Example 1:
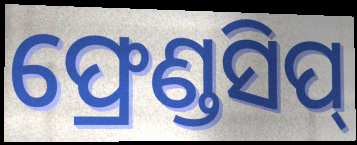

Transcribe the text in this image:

ଫ୍ରେଣ୍ଡସିପ୍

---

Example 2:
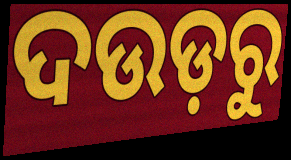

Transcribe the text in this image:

ଦଉଡ଼ରୁ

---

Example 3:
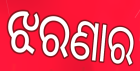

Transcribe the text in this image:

ଝରଣାର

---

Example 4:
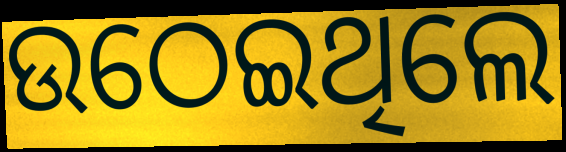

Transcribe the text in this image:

ଉଠେଇଥିଲେ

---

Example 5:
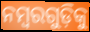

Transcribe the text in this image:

ନମ୍ବରଗୁଡ଼ିକୁ